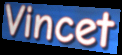
Vincet